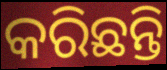
କରିଛନ୍ତି